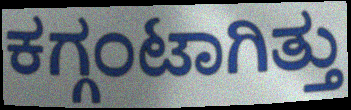
ಕಗ್ಗಂಟಾಗಿತ್ತು